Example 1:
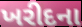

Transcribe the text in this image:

ખરીદના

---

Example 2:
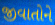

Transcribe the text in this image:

જીવાતોને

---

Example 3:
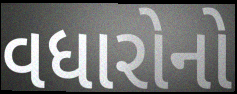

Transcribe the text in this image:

વધારોનો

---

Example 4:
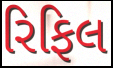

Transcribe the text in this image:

રિફિલ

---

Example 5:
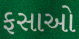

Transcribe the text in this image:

ફસાઓ